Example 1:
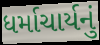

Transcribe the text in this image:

ધર્માચાર્યનું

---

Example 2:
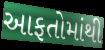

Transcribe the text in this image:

આફતોમાંથી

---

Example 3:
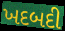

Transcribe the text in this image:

ખદબદી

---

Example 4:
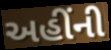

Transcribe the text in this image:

અહીંની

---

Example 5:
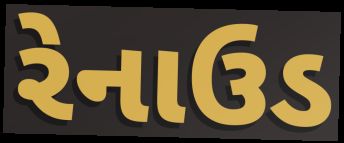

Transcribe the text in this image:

રેનાઉડ